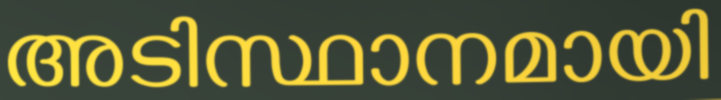
അടിസ്ഥാനമായി